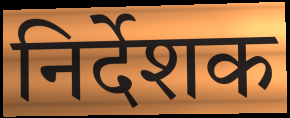
निर्देशक